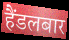
हैंडलबार